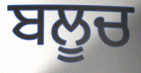
ਬਲੂਚ